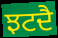
ਝਟਦੈ